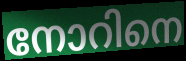
നോറിനെ